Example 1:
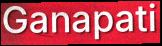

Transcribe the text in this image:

Ganapati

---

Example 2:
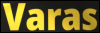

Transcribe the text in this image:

Varas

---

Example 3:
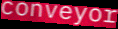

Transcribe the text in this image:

conveyor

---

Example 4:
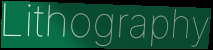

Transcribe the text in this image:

Lithography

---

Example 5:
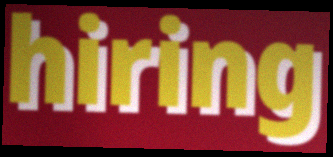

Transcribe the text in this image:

hiring